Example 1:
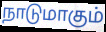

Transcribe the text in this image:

நாடுமாகும்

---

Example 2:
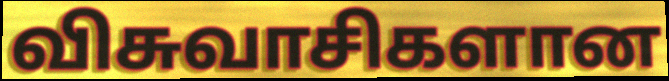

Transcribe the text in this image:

விசுவாசிகளான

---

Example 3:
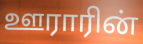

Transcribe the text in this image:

ஊராரின்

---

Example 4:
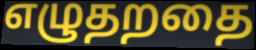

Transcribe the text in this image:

எழுதறதை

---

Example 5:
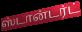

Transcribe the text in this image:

ஸ்டான்டர்ட்